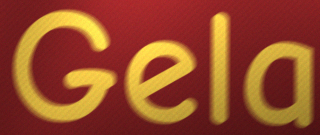
Gela